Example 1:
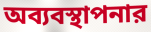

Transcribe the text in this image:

অব্যবস্থাপনার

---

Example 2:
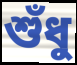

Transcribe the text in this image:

শুঁধু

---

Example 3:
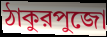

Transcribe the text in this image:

ঠাকুরপুজো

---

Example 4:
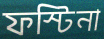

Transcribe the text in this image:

ফস্টিনা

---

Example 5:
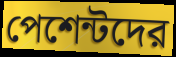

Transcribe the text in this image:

পেশেন্টদের